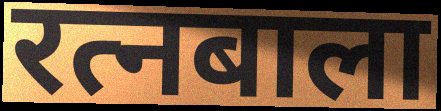
रत्नबाला